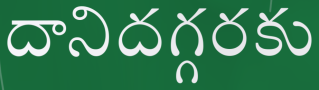
దానిదగ్గరకు